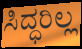
ಸಿದ್ಧರಿಲ್ಲ